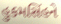
હુકમસિંહને